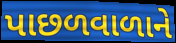
પાછળવાળાને